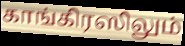
காங்கிரஸிலும்